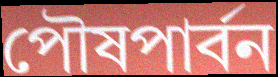
পৌষপার্বন